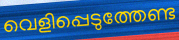
വെളിപ്പെടുത്തേണ്ട